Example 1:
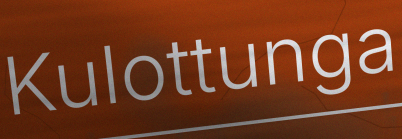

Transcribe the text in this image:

Kulottunga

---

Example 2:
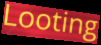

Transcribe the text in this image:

Looting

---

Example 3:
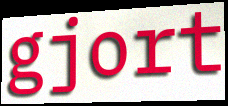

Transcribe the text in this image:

gjort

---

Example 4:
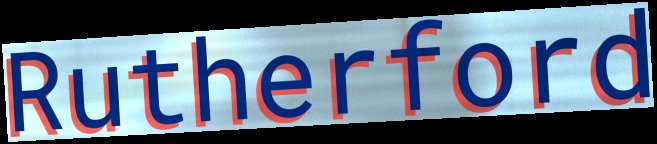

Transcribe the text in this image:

Rutherford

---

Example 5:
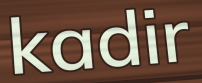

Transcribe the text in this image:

kadir